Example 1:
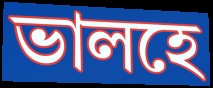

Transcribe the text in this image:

ভালহে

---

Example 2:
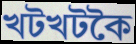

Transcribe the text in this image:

খটখটকৈ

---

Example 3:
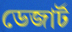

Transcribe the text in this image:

ডেজাৰ্ট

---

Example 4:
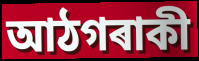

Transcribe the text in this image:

আঠগৰাকী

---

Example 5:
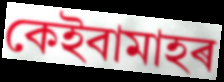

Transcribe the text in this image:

কেইবামাহৰ